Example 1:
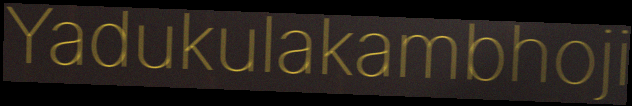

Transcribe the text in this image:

Yadukulakambhoji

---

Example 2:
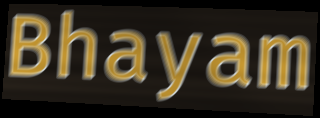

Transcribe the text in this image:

Bhayam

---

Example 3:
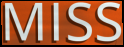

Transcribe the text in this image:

MISS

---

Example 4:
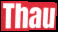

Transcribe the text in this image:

Thau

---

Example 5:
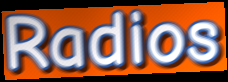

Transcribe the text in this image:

Radios